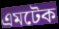
এমটেক